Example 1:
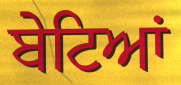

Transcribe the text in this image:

ਬੇਟਿਆਂ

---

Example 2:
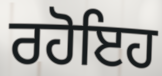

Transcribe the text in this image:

ਰਹੋਇਹ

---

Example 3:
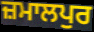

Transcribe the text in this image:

ਜ਼ਮਾਲਪੁਰ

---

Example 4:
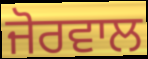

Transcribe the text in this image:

ਜੋਰਵਾਲ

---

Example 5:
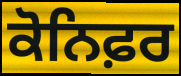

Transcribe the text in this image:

ਕੋਨਿਫ਼ਰ